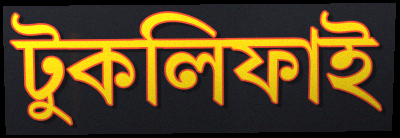
টুকলিফাই